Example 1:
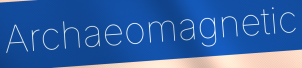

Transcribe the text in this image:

Archaeomagnetic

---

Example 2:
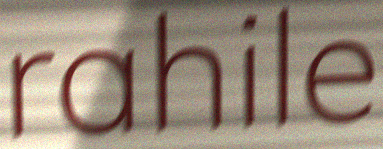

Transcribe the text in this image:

rahile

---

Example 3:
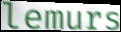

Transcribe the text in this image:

lemurs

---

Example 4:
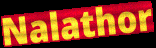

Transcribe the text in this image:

Nalathor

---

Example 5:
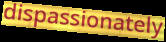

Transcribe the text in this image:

dispassionately